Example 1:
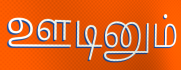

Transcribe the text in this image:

ஊடினும்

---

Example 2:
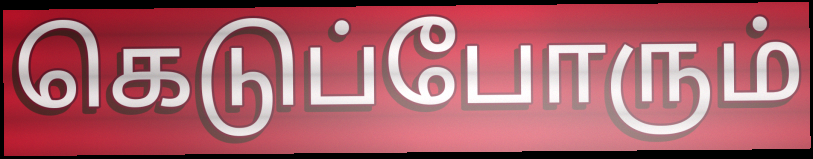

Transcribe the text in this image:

கெடுப்போரும்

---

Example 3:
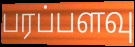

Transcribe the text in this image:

பரப்பளவு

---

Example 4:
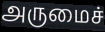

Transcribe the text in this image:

அருமைச்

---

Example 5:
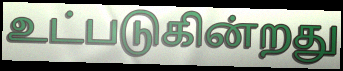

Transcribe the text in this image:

உட்படுகின்றது